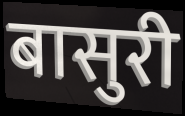
बासुरी